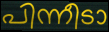
പിന്നീടാ